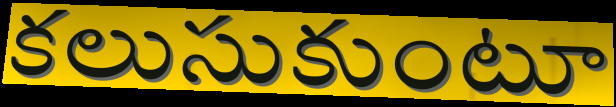
కలుసుకుంటూ